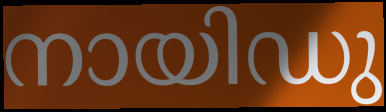
നായിഡു